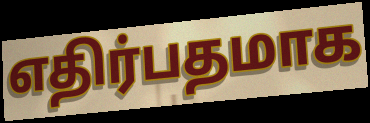
எதிர்பதமாக